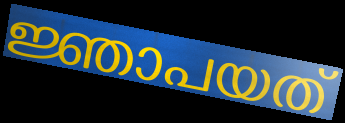
ജ്ഞാപയത്